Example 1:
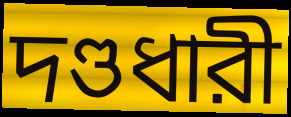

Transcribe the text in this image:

দণ্ডধারী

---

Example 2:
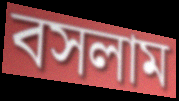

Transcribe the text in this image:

বসলাম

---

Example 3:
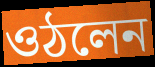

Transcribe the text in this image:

ওঠলেন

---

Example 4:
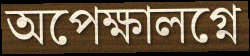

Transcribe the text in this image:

অপেক্ষালগ্নে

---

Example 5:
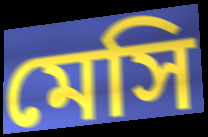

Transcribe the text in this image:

মেসি